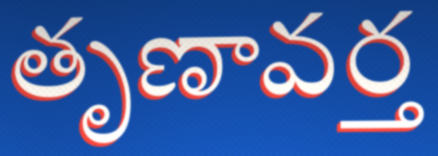
తృణావర్త